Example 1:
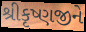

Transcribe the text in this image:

શ્રીકૃષ્ણજીને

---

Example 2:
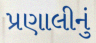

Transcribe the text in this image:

પ્રણાલીનું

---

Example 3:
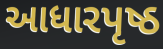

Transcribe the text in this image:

આધારપૃષ્ઠ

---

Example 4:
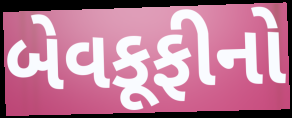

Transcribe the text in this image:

બેવકૂફીનો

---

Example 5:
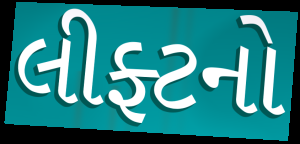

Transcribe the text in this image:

લીફ્ટનો